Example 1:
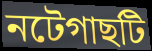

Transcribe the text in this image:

নটেগাছটি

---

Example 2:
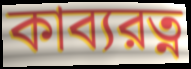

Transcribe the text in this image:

কাব্যরত্ন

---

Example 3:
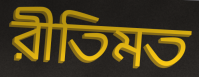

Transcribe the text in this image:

রীতিমত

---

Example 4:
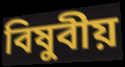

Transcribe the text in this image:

বিষুবীয়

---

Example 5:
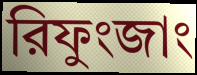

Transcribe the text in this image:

রিফুংজাং